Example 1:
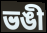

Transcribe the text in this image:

ভঙী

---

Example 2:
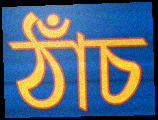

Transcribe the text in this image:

ঠাঁচ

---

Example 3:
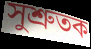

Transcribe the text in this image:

সুশ্ৰুতক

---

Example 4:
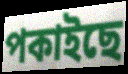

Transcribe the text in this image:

পকাইছে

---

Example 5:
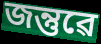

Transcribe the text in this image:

জন্তুৱে